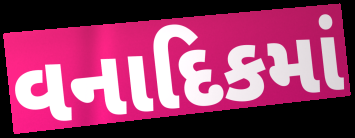
વનાદિકમાં